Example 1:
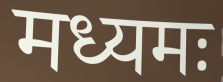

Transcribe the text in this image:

मध्यमः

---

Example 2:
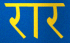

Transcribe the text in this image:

रार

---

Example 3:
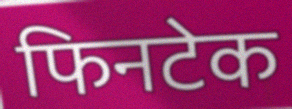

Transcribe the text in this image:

फिनटेक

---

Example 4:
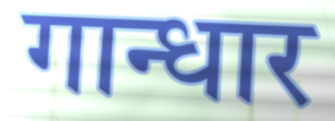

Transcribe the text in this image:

गान्धार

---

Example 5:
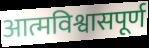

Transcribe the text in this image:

आत्मविश्वासपूर्ण